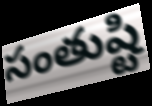
సంతుష్టి